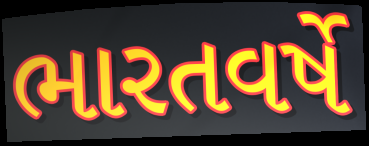
ભારતવર્ષે